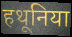
हथूनिया